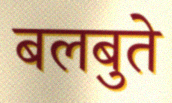
बलबुते